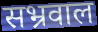
सभ्रवाल